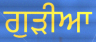
ਗੁਡ਼ੀਆ